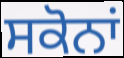
ਸਕੋਨਾਂ